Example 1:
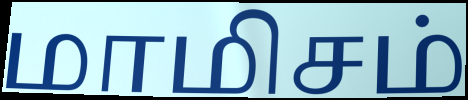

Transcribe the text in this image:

மாமிசம்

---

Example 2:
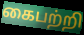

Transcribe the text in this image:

கைபற்றி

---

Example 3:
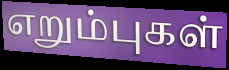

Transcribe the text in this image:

எறும்புகள்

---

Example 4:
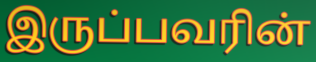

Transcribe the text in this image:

இருப்பவரின்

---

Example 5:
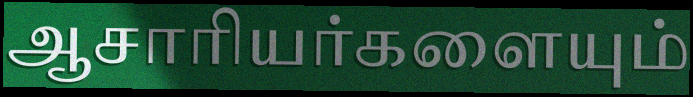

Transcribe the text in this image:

ஆசாரியர்களையும்